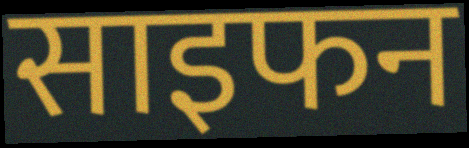
साइफन